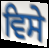
ਵਿਸੇ